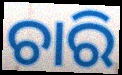
ଚାରି